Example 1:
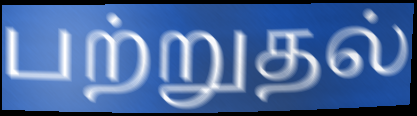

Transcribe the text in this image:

பற்றுதல்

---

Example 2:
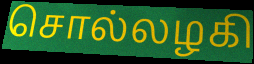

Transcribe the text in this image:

சொல்லழகி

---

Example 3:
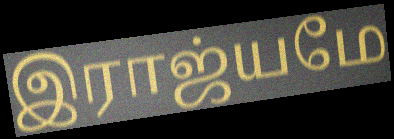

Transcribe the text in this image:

இராஜ்யமே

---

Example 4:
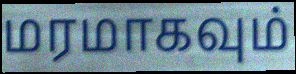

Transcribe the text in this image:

மரமாகவும்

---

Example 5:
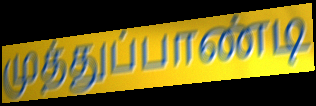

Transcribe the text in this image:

முத்துப்பாண்டி